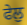
ਫੇਲੁ